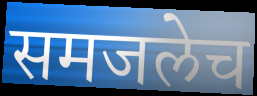
समजलेच